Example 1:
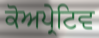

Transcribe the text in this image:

ਕੋਅਪ੍ਰੇਟਿਵ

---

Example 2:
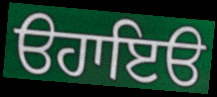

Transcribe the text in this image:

ੳਹਾਇੳ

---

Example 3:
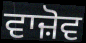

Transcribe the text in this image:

ਵਾਜ਼ੋਵ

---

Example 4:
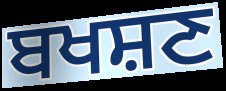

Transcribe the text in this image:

ਬਖਸ਼ਣ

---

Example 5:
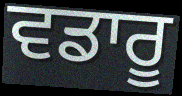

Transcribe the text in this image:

ਵਡਾਰੂ